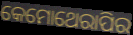
କେମୋଥେରାପିର